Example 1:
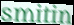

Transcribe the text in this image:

smitin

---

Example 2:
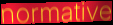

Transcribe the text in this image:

normative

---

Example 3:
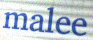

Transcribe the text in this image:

malee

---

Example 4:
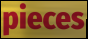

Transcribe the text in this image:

pieces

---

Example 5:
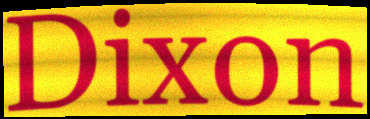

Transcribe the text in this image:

Dixon